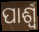
ପାର୍ଶ୍ବ